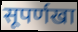
सूपर्णखा